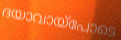
ദയാവായ്പോടെ